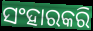
ସଂହାରକରି